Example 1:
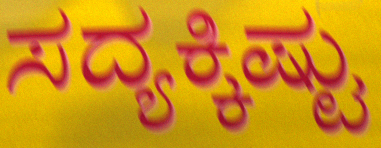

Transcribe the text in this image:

ಸದ್ಯಕ್ಕಿಷ್ಟು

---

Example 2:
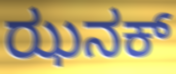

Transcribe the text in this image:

ಝನಕ್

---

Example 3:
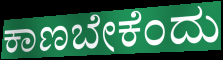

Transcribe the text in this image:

ಕಾಣಬೇಕೆಂದು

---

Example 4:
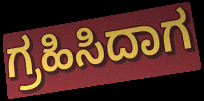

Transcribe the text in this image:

ಗ್ರಹಿಸಿದಾಗ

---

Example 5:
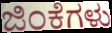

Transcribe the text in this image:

ಜಿಂಕೆಗಳು